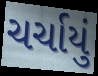
ચર્ચાયું